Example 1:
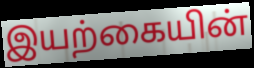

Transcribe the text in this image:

இயற்கையின்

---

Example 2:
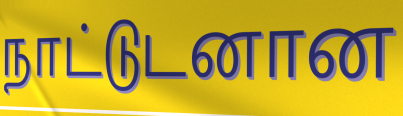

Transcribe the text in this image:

நாட்டுடனான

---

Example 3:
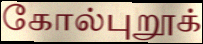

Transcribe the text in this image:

கோல்புறூக்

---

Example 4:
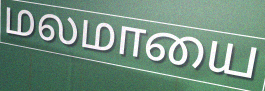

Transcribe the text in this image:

மலமாயை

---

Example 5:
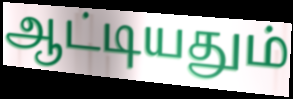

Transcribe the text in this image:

ஆட்டியதும்